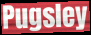
Pugsley